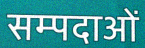
सम्पदाओं